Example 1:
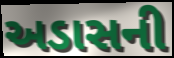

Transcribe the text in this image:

અડાસની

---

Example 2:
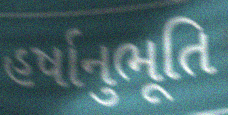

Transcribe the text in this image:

હર્ષાનુભૂતિ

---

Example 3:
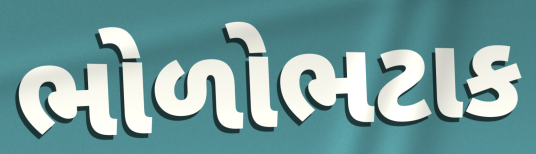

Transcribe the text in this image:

ભોળોભટાક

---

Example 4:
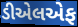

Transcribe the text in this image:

ડીએલએફ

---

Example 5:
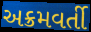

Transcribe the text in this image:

અક્રમવર્તી